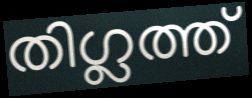
തിഗ്ലത്ത്